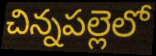
చిన్నపల్లెలో